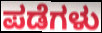
ಪಡೆಗಳು